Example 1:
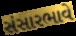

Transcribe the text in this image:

સંસારભાવે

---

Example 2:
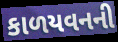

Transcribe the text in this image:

કાળયવનની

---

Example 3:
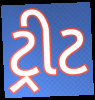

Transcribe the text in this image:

ટ્રીટ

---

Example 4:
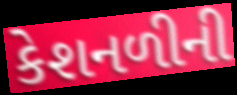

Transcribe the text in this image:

કેશનળીની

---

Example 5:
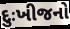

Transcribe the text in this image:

દુઃખીજનો